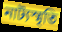
নাট্যস্মৃতি